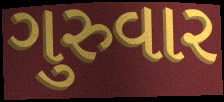
ગુરુવાર